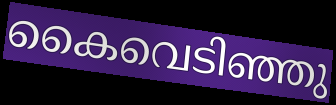
കൈവെടിഞ്ഞു